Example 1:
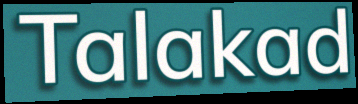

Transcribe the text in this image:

Talakad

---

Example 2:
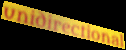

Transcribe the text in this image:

unidirectional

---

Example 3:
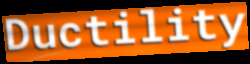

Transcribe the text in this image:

Ductility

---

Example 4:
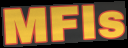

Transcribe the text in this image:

MFIs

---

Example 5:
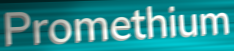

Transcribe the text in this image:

Promethium